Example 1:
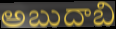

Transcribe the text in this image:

అబుదాబి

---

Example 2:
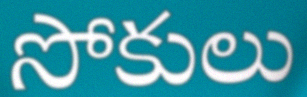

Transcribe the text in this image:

సోకులు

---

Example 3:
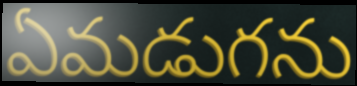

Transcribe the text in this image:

ఏమడుగను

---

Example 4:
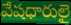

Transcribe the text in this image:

వేషధారులై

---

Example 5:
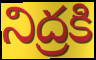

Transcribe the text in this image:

నిద్రకి